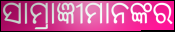
ସାମ୍ରାଜ୍ଞୀମାନଙ୍କର